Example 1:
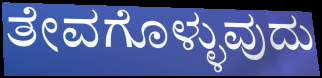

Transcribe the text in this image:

ತೇವಗೊಳ್ಳುವುದು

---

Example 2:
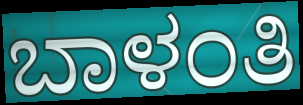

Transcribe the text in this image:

ಬಾಳಂತಿ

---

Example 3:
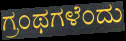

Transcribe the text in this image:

ಗ್ರಂಥಗಳೆಂದು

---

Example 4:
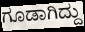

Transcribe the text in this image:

ಗೂಡಾಗಿದ್ದು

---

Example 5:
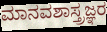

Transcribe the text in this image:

ಮಾನವಶಾಸ್ತ್ರಜ್ಞರ